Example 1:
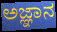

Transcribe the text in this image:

ಅಜ್ಞಾನ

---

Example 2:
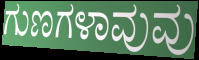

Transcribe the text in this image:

ಗುಣಗಳಾವುವು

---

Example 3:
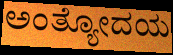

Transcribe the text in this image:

ಅಂತ್ಯೋದಯ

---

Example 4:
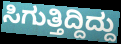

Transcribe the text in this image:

ಸಿಗುತ್ತಿದ್ದಿದ್ದು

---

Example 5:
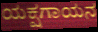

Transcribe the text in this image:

ಯಕ್ಷಗಾಯನ